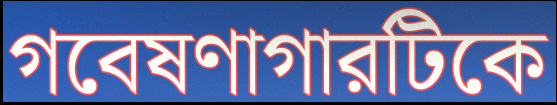
গবেষণাগারটিকে